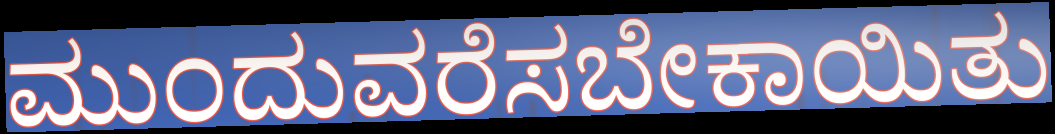
ಮುಂದುವರೆಸಬೇಕಾಯಿತು